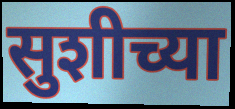
सुशीच्या